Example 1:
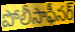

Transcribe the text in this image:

పోలీసాఫీసర్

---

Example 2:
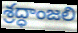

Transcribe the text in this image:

శ్రద్ధాంజలి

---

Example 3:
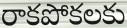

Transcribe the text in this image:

రాకపోకలకు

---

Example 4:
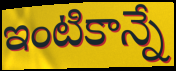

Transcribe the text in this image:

ఇంటికాన్నే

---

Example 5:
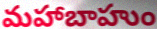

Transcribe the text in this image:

మహాబాహుం